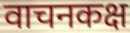
वाचनकक्ष